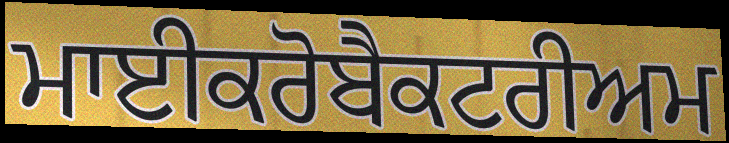
ਮਾਈਕਰੋਬੈਕਟਰੀਅਮ